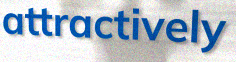
attractively